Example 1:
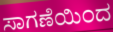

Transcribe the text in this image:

ಸಾಗಣೆಯಿಂದ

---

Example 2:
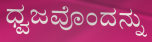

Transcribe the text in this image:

ಧ್ವಜವೊಂದನ್ನು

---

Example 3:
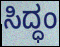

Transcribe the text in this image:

ಸಿದ್ಧಂ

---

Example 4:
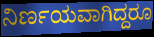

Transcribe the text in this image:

ನಿರ್ಣಯವಾಗಿದ್ದರೂ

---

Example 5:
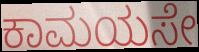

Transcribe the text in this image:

ಕಾಮಯಸೇ